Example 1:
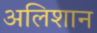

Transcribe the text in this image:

अलिशान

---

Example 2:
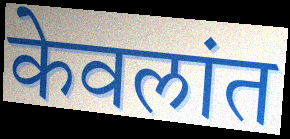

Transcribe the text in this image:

केवलांत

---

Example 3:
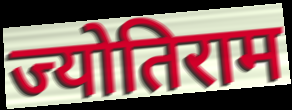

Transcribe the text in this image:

ज्योतिराम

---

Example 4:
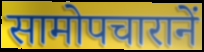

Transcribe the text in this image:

सामोपचारानें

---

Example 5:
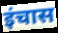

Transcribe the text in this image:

इंचास